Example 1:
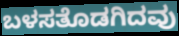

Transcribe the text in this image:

ಬಳಸತೊಡಗಿದವು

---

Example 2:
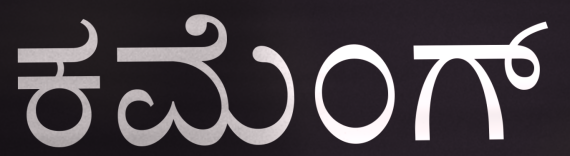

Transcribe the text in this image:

ಕಮೆಂಗ್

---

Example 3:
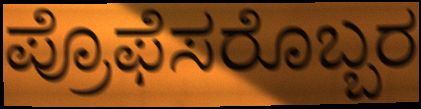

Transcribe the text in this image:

ಪ್ರೊಫೆಸರೊಬ್ಬರ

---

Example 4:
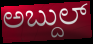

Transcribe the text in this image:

ಅಬ್ದುಲ್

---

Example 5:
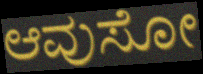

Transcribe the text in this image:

ಆವುಸೋ